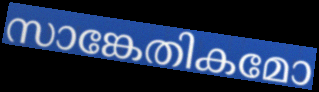
സാങ്കേതികമോ